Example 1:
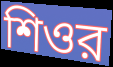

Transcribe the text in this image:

শিওর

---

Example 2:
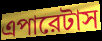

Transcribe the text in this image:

এপারেটাস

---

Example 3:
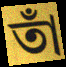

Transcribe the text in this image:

তাঁ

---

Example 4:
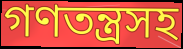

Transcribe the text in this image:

গণতন্ত্রসহ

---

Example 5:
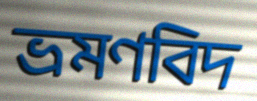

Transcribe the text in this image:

ভ্রমণবিদ